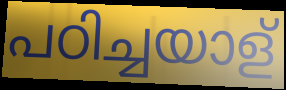
പഠിച്ചയാള്